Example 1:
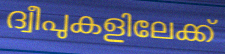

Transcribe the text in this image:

ദ്വീപുകളിലേക്ക്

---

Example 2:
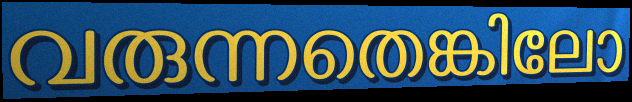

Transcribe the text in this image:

വരുന്നതെങ്കിലോ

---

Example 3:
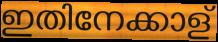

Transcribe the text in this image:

ഇതിനേക്കാള്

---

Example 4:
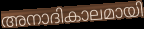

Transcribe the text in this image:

അനാദികാലമായി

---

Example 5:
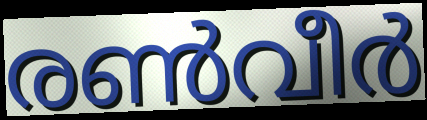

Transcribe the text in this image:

രൺവീർ